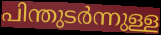
പിന്തുടർന്നുള്ള